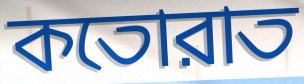
কতোরাত